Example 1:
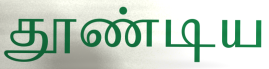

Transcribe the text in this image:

தூண்டிய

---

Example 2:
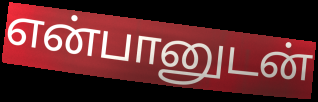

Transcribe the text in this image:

என்பானுடன்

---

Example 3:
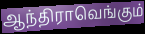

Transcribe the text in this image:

ஆந்திராவெங்கும்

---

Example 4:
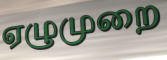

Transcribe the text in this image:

ஏழுமுறை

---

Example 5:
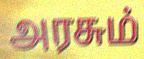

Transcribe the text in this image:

அரசும்